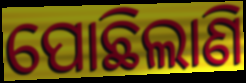
ପୋଛିଲାଣି